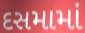
દસમામાં